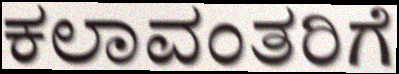
ಕಲಾವಂತರಿಗೆ